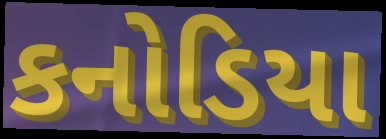
કનોડિયા